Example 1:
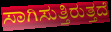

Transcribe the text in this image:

ಸಾಗಿಸುತ್ತಿರುತ್ತದೆ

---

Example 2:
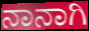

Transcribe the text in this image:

ನಾನಾಗಿ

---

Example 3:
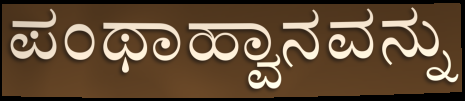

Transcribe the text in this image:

ಪಂಥಾಹ್ವಾನವನ್ನು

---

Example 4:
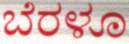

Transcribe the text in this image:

ಬೆರಳೂ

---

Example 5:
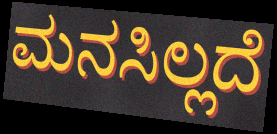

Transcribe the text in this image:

ಮನಸಿಲ್ಲದೆ